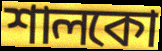
শালকো